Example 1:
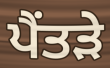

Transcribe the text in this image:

ਪੈਂਤੜੇ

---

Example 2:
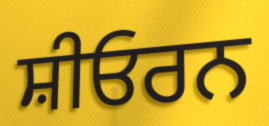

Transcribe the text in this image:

ਸ਼ੀਓਰਨ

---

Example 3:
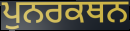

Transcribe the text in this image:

ਪੁਨਰਕਥਨ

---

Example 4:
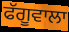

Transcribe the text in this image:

ਫੱਗੂਵਾਲਾ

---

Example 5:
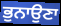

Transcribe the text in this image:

ਭੁਨਾਉਣਾ